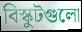
বিস্কুটগুলো